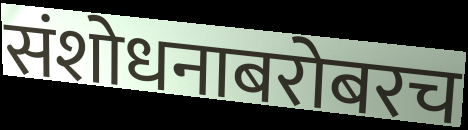
संशोधनाबरोबरच